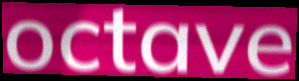
octave